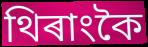
থিৰাংকৈ